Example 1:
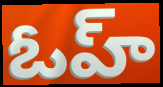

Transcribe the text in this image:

ఓహ్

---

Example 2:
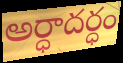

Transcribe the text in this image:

అర్ధాదర్ధం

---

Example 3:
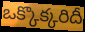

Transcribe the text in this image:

ఒక్కొక్కరిదీ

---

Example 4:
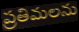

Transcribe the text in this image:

ప్రతిమలను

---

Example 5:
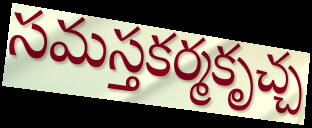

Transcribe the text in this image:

సమస్తకర్మకృచ్చ